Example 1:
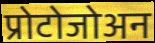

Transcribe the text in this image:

प्रोटोजोअन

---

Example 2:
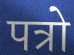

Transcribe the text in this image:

पत्रो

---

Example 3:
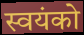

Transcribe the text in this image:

स्वयंको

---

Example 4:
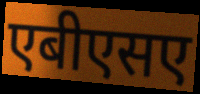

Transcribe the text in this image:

एबीएसए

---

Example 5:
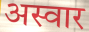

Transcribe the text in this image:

अस्वार